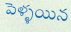
పెళ్ళయిన